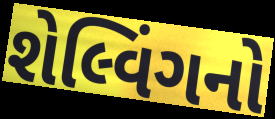
શેલ્વિંગનો